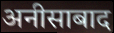
अनीसाबाद